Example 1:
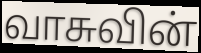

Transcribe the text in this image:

வாசுவின்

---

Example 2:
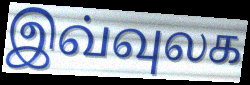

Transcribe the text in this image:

இவ்வுலக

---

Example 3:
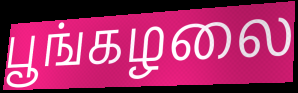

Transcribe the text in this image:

பூங்கழலை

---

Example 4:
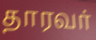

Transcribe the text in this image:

தாரவர்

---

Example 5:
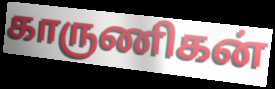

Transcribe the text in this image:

காருணிகன்